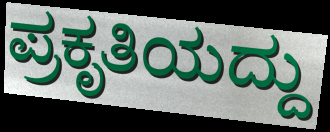
ಪ್ರಕೃತಿಯದ್ದು